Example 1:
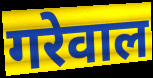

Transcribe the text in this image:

गरेवाल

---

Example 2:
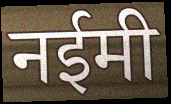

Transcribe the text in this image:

नईमी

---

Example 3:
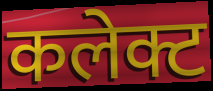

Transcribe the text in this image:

कलेक्ट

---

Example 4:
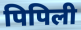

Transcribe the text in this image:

पिपिली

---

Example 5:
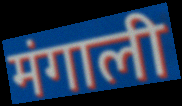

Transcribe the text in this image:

मंगाली